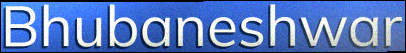
Bhubaneshwar